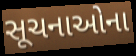
સૂચનાઓના